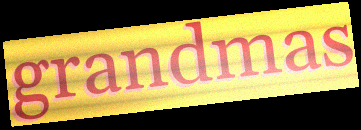
grandmas